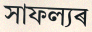
সাফল্যৰ